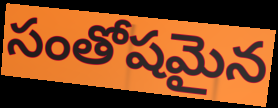
సంతోషమైన